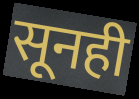
सूनही